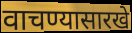
वाचण्यासारखे